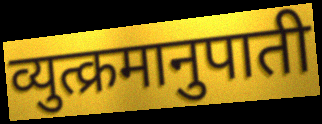
व्युत्क्रमानुपाती